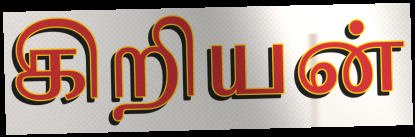
கிறியன்